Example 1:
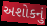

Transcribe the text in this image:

અશોકનું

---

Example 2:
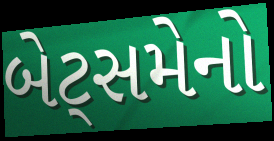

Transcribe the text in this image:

બેટ્સમેનો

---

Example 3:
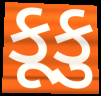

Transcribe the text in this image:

કૂકુ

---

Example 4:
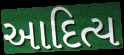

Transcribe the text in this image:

આદિત્ય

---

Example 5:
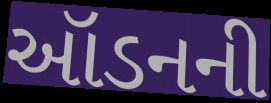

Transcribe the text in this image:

ઑડનની